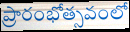
ప్రారంభోత్సవంలో